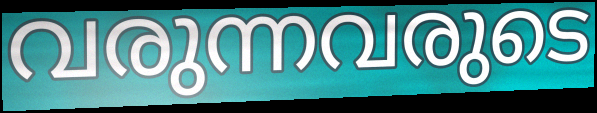
വരുന്നവരുടെ